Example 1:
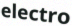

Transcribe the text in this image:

electro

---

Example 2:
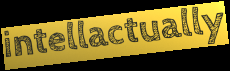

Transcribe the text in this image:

intellactually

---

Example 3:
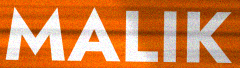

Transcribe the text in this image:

MALIK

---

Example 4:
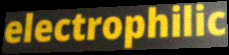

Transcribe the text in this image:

electrophilic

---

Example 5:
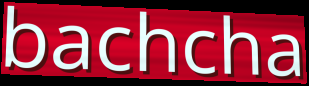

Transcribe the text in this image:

bachcha